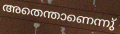
അതെന്താണെന്നു്